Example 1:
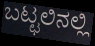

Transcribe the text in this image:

ಬಟ್ಟಲಿನಲ್ಲಿ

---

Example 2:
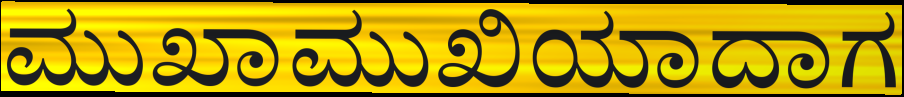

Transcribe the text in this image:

ಮುಖಾಮುಖಿಯಾದಾಗ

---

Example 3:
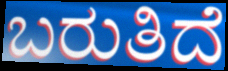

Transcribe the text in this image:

ಬರುತಿದೆ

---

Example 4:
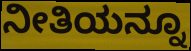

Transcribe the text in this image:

ನೀತಿಯನ್ನೂ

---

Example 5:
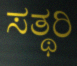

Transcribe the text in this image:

ಸತ್ಥರಿ